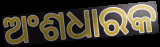
ଅଂଶଧାରକ